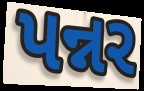
પન્નર